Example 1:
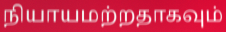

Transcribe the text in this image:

நியாயமற்றதாகவும்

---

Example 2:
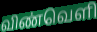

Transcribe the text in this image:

விண்வெளி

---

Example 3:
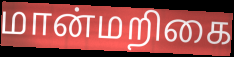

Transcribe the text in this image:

மான்மறிகை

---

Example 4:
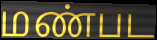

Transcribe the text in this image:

மண்பட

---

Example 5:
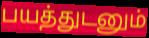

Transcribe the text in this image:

பயத்துடனும்